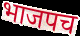
भाजपच